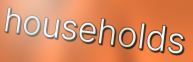
households